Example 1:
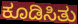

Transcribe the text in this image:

ಕೂಡಿಸಿತು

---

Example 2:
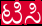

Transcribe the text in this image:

ಟಿಸಿ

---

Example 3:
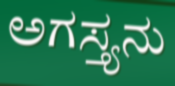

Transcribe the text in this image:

ಅಗಸ್ತ್ಯನು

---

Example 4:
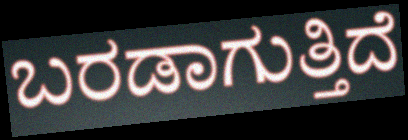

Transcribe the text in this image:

ಬರಡಾಗುತ್ತಿದೆ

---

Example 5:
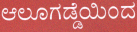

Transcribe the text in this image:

ಆಲೂಗಡ್ಡೆಯಿಂದ